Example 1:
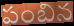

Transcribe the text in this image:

పంబిన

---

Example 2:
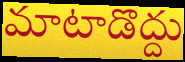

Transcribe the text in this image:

మాటాడొద్దు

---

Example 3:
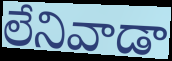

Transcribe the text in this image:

లేనివాడా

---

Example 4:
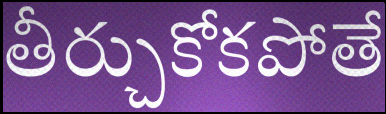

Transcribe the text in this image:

తీర్చుకోకపోతే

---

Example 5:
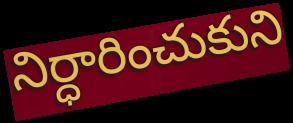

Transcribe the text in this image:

నిర్ధారించుకుని